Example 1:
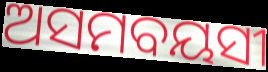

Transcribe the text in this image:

ଅସମବୟସୀ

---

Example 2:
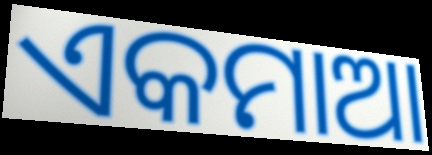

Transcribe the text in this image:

ଏକମାଆ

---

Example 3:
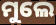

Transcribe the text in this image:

ମୁଲେ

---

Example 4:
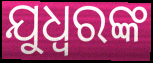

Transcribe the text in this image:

ଯୁଧ୍ଵରଙ୍କ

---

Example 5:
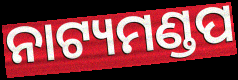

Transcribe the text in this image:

ନାଟ୍ୟମଣ୍ଡପ